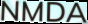
NMDA